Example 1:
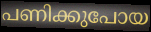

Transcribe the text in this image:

പണിക്കുപോയ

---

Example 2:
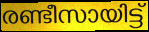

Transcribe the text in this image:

രണ്ടീസായിട്ട്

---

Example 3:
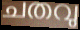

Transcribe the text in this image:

ചതവു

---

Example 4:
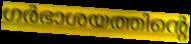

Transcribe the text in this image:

ഗർഭാശയത്തിന്റെ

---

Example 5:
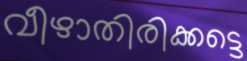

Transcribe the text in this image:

വീഴാതിരിക്കട്ടെ